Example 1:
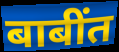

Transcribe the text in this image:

बाबींत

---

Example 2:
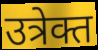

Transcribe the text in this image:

उत्रेक्त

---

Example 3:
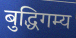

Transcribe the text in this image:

बुद्धिगम्य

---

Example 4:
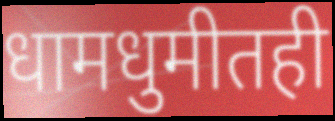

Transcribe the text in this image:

धामधुमीतही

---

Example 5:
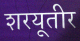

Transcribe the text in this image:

शरयूतीर